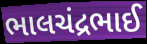
ભાલચંદ્રભાઈ